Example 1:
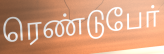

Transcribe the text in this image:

ரெண்டுபேர்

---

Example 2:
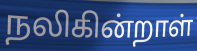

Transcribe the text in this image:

நலிகின்றாள்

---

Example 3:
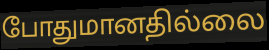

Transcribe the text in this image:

போதுமானதில்லை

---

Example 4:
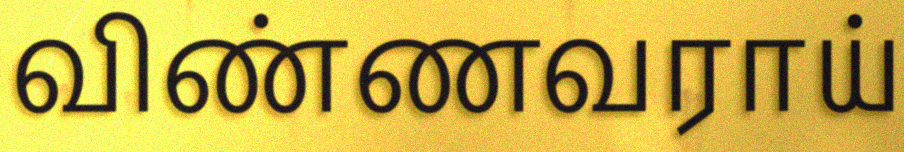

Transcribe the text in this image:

விண்ணவராய்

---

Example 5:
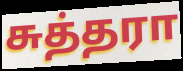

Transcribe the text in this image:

சுத்தரா